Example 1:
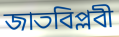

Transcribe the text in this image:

জাতবিপ্লবী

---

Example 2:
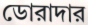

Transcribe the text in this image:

ডোরাদার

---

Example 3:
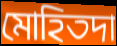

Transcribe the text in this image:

মোহিতদা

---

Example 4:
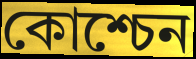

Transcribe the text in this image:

কোশ্চেন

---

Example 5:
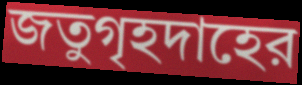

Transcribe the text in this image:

জতুগৃহদাহের